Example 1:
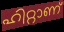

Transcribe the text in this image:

ഹിറ്റാണ്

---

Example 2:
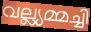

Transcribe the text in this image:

വല്ല്യമ്മച്ചി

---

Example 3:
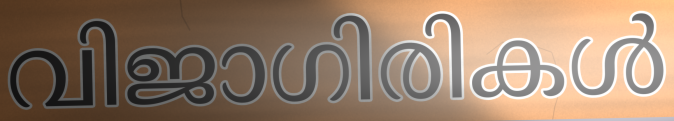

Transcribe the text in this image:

വിജാഗിരികൾ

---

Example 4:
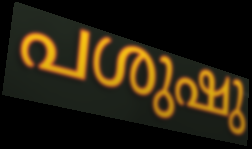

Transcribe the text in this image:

പശുഷു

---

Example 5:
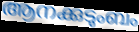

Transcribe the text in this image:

ആനക്കുടുംബം